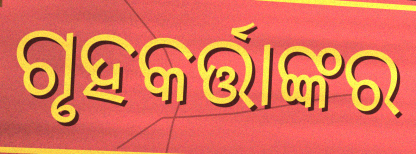
ଗୃହକର୍ତ୍ତାଙ୍କର